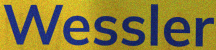
Wessler